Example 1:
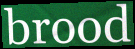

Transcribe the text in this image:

brood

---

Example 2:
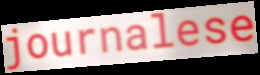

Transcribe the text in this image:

journalese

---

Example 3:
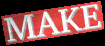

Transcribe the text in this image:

MAKE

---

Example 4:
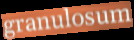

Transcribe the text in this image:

granulosum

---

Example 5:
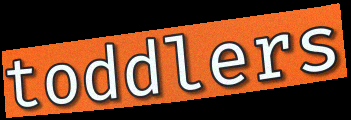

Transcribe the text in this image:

toddlers